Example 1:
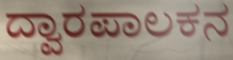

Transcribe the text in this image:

ದ್ವಾರಪಾಲಕನ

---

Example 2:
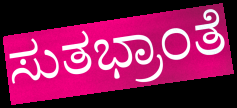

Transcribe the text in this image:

ಸುತಭ್ರಾಂತೆ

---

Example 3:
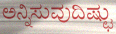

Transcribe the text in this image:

ಅನ್ನಿಸುವುದಿಷ್ಟು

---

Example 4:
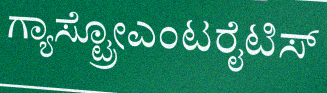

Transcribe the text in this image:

ಗ್ಯಾಸ್ಟ್ರೋಎಂಟರೈಟಿಸ್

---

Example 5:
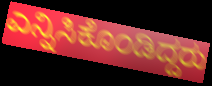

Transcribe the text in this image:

ಎನ್ನಿಸಿಕೊಂಡಿದ್ದರು